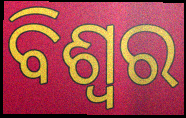
ବିଶ୍ଵର